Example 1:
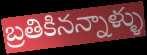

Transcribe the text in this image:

బ్రతికినన్నాళ్ళు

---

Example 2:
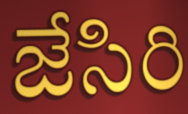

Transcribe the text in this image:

జేసిరి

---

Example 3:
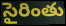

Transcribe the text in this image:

సైరింతు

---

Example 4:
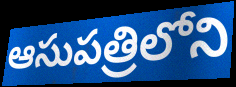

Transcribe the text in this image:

ఆసుపత్రిలోని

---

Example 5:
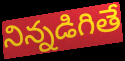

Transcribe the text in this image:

నిన్నడిగితే